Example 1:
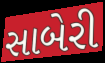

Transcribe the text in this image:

સાબેરી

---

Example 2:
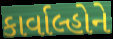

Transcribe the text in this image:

કાર્વાલ્હોને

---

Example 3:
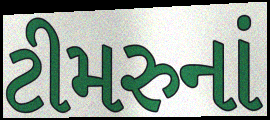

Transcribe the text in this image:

ટીમરુનાં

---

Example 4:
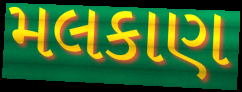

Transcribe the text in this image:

મલકાણ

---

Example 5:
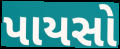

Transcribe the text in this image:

પાયસો